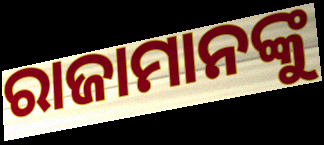
ରାଜାମାନଙ୍କୁ